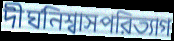
দীর্ঘনিশ্বাসপরিত্যাগ